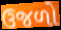
ઉજળો